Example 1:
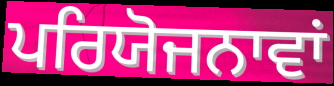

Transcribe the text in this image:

ਪਰਿਯੋਜਨਾਵਾਂ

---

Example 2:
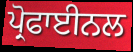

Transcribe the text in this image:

ਪ੍ਰੋਫਾਈਨਲ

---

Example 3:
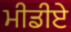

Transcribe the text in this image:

ਮੀਡੀਏ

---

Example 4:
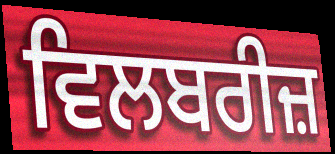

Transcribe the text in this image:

ਵਿਲਬਰੀਜ਼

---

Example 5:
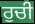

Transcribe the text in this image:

ਰੁਚੀ